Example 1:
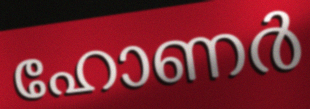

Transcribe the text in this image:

ഹോണർ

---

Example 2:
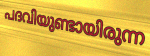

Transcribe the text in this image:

പദവിയുണ്ടായിരുന്ന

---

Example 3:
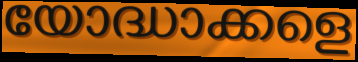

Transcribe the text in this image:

യോദ്ധാക്കളെ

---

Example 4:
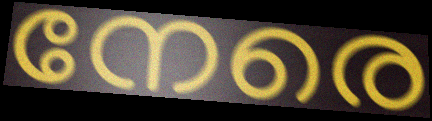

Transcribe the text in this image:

നേരെ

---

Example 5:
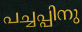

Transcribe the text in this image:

പച്ചപ്പിനു